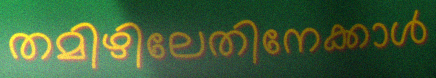
തമിഴിലേതിനേക്കാൾ